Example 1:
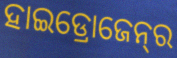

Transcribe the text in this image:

ହାଇଡ୍ରୋଜେନ୍‌ର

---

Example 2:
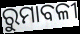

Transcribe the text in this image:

ରୁମାବଳୀ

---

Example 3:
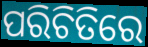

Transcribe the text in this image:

ପରିଚିତିରେ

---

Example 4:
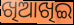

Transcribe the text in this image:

ଖିଆଖିଇ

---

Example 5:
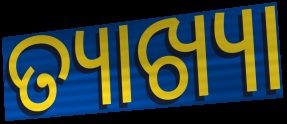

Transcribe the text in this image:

ତ୍ୟାଖ୍ୟା